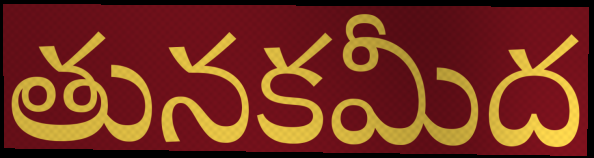
తునకమీద